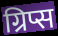
ग्रिप्स